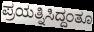
ಪ್ರಯತ್ನಿಸಿದ್ದಂತೂ